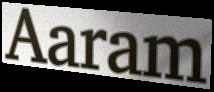
Aaram